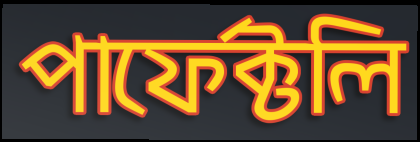
পার্ফেক্টলি